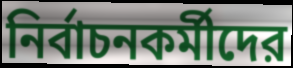
নির্বাচনকর্মীদের